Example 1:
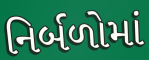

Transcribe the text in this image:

નિર્બળોમાં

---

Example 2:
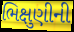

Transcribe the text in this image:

ભિક્ષુણીની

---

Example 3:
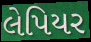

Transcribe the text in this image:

લેપિયર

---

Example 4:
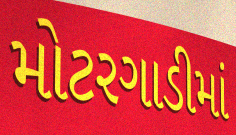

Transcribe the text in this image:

મોટરગાડીમાં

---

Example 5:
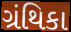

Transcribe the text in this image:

ગ્રંથિકા